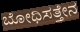
ಬೋಧಿಸತ್ತೇನ